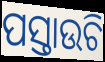
ପସ୍ତାଉଚି